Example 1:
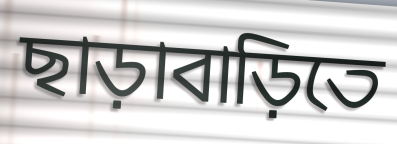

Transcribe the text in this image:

ছাড়াবাড়িতে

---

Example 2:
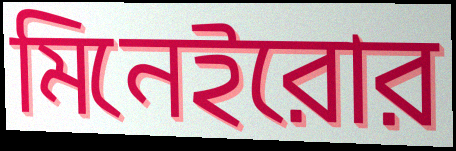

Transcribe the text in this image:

মিনেইরোর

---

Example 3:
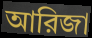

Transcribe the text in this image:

আরিজা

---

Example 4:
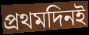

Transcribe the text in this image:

প্রথমদিনই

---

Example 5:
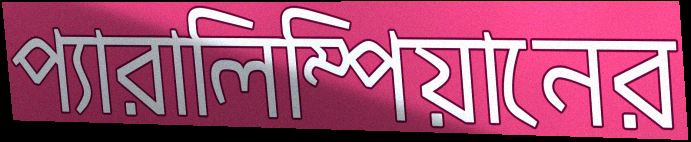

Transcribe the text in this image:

প্যারালিম্পিয়ানের